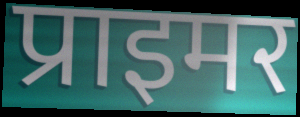
प्राइमर